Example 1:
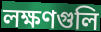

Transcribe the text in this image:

লক্ষণগুলি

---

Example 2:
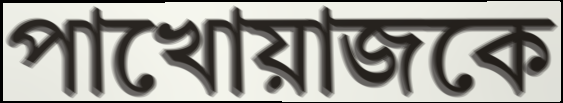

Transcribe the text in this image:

পাখোয়াজকে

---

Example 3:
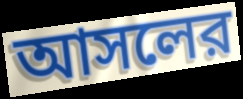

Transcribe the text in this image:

আসলের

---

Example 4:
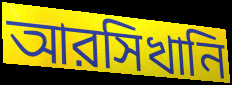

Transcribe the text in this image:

আরসিখানি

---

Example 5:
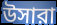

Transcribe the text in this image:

উসারা